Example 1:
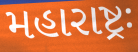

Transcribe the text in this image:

મહારાષ્ટ્રઃ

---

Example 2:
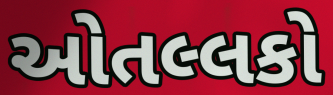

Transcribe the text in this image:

ઓતલ્લકો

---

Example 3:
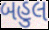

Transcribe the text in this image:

બહુલ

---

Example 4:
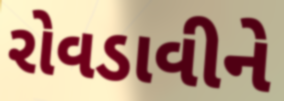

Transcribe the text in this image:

રોવડાવીને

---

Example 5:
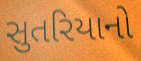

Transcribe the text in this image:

સુતરિયાનો